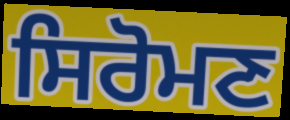
ਸਿਰੋਮਣ